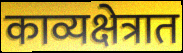
काव्यक्षेत्रात